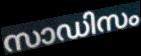
സാഡിസം